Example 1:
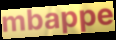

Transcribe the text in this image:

mbappe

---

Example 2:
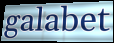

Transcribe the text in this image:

galabet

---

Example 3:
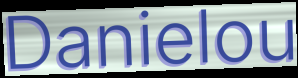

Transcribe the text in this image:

Danielou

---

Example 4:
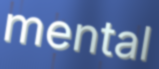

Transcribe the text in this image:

mental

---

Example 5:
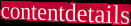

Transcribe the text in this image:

contentdetails